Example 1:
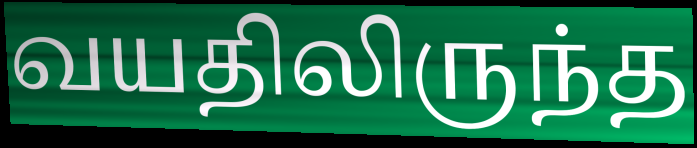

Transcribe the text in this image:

வயதிலிருந்த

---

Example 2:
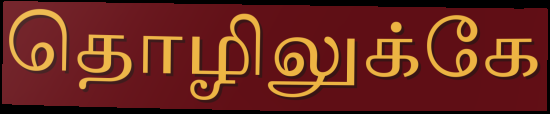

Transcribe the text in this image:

தொழிலுக்கே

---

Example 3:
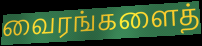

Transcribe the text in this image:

வைரங்களைத்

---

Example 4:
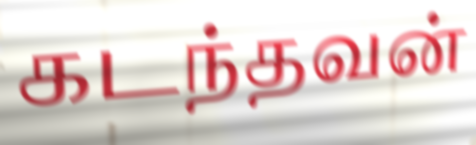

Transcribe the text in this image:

கடந்தவன்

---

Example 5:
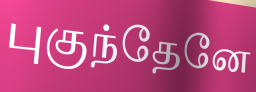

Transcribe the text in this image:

புகுந்தேனே